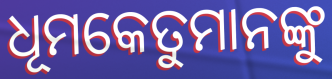
ଧୂମକେତୁମାନଙ୍କୁ